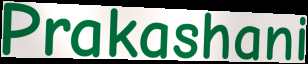
Prakashani